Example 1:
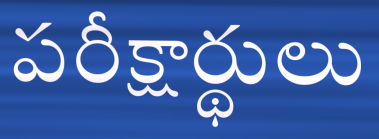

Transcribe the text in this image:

పరీక్షార్థులు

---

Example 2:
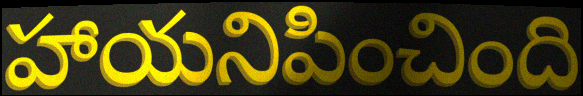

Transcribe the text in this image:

హాయనిపించింది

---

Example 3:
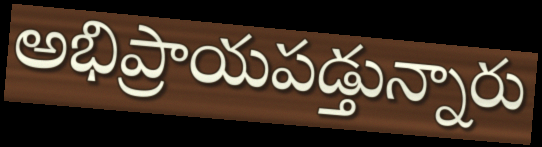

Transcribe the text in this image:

అభిప్రాయపడ్తున్నారు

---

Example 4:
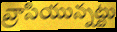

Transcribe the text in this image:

వ్రాసియున్నట్టు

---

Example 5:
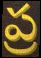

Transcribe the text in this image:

ప్ర